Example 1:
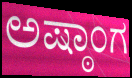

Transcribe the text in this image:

ಅಷ್ಠಾಂಗ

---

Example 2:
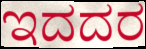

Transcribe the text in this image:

ಇದದರ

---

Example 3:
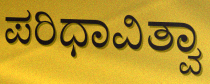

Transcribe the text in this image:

ಪರಿಧಾವಿತ್ವಾ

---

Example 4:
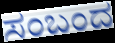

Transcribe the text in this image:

ಸಂಬಂದ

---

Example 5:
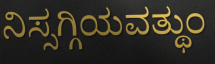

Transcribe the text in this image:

ನಿಸ್ಸಗ್ಗಿಯವತ್ಥುಂ